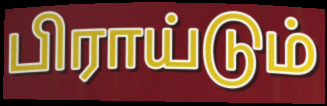
பிராய்டும்